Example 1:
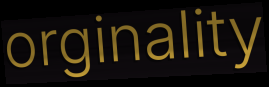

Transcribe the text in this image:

orginality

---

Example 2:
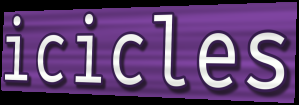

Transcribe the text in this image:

icicles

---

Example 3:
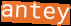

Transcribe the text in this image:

antey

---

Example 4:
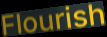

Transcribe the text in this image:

Flourish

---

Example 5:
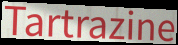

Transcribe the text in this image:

Tartrazine